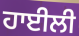
ਹਾਈਲੀ